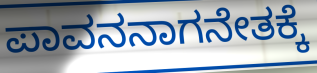
ಪಾವನನಾಗನೇತಕ್ಕೆ